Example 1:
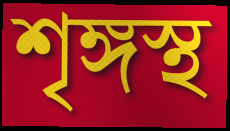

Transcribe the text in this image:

শৃঙ্গস্থ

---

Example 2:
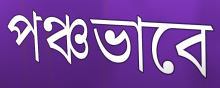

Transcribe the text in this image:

পঞ্চভাবে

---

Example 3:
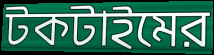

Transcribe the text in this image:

টকটাইমের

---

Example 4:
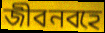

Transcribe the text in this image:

জীবনবহে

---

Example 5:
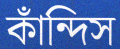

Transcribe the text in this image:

কাঁন্দিস